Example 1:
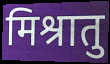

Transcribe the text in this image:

मिश्रातु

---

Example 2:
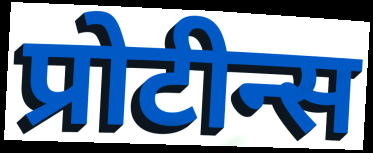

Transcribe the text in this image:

प्रोटीन्स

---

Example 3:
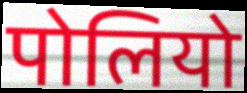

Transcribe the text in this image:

पोलियो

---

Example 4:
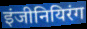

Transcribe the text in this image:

इंजीनियिरंग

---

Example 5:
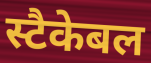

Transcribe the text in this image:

स्टैकेबल